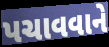
પચાવવાને